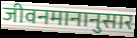
जीवनमानानुसार